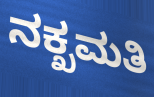
ನಕ್ಖಮತಿ